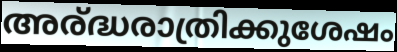
അര്ദ്ധരാത്രിക്കുശേഷം